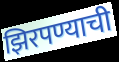
झिरपण्याची